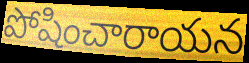
పోషించారాయన